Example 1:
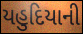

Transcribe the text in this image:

યહુદિયાની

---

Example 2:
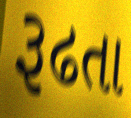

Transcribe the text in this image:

રૂઢતા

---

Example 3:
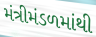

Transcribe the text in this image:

મંત્રીમંડળમાંથી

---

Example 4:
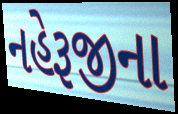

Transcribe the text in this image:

નહેરૂજીના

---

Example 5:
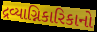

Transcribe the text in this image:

દ્રવ્યાગ્નિકારિકાનો